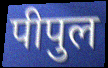
पीपुल